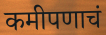
कमीपणाचं